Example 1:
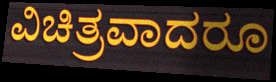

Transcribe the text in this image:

ವಿಚಿತ್ರವಾದರೂ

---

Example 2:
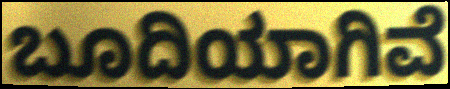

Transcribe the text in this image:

ಬೂದಿಯಾಗಿವೆ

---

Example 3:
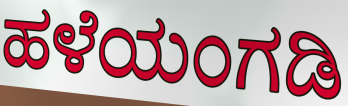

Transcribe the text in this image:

ಹಳೆಯಂಗಡಿ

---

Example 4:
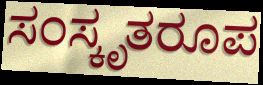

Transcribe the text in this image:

ಸಂಸ್ಕೃತರೂಪ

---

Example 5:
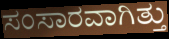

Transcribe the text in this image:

ಸಂಸಾರವಾಗಿತ್ತು